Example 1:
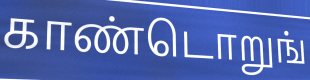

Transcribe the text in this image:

காண்டொறுங்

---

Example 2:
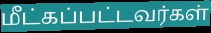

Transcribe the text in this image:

மீட்கப்பட்டவர்கள்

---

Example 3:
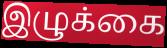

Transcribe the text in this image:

இழுக்கை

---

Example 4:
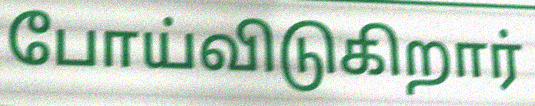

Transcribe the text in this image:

போய்விடுகிறார்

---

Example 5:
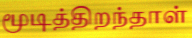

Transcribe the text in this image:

மூடித்திறந்தாள்